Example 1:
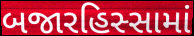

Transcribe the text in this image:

બજારહિસ્સામાં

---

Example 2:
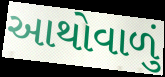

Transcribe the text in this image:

આથોવાળું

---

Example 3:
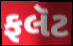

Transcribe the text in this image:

ફલૅટ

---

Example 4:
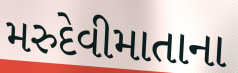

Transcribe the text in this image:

મરુદેવીમાતાના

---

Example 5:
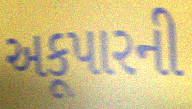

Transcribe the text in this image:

અકૂપારની